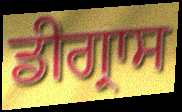
ਡੀਗ੍ਰਾਸ